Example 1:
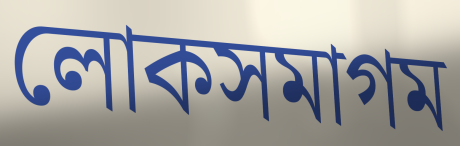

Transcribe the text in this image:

লোকসমাগম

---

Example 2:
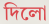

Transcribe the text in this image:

দিলো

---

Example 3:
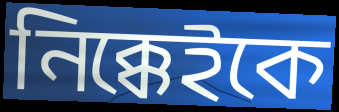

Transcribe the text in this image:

নিক্কেইকে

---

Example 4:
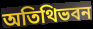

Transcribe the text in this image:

অতিথিভবন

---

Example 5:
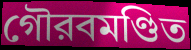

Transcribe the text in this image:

গৌরবমণ্ডিত